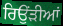
ਰਿਉਂੜੀਆਂ